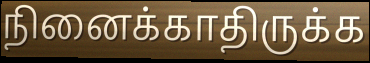
நினைக்காதிருக்க